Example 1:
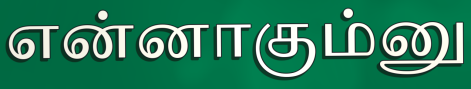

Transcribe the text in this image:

என்னாகும்னு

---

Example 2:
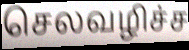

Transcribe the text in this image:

செலவழிச்ச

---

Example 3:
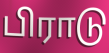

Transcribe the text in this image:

பிராடு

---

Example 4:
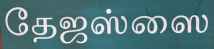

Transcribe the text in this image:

தேஜஸ்ஸை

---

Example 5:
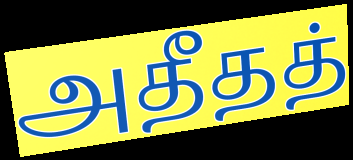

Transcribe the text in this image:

அதீதத்